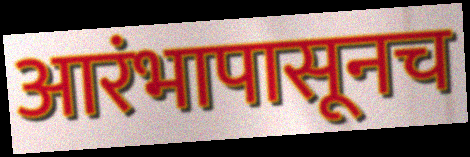
आरंभापासूनच